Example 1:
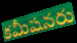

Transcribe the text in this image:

కమీషనరు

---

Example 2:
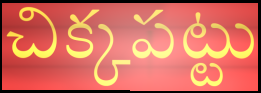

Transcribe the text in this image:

చిక్కపట్టు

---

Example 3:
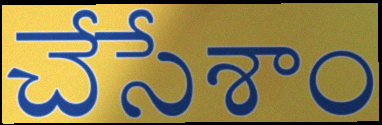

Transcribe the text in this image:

చేసేశాం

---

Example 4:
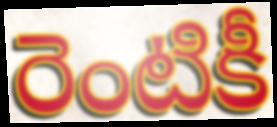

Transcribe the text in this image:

రెంటికీ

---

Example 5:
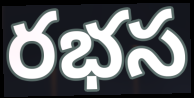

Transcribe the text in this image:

రభస